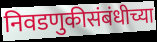
निवडणुकीसंबंधीच्या